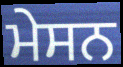
ਮੇਸਨ